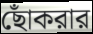
ছোঁকরার